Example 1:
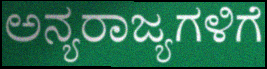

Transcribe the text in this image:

ಅನ್ಯರಾಜ್ಯಗಳಿಗೆ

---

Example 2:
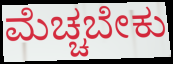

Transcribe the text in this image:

ಮೆಚ್ಚಬೇಕು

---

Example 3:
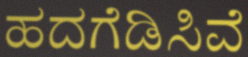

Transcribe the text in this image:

ಹದಗೆಡಿಸಿವೆ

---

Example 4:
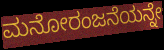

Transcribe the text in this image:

ಮನೋರಂಜನೆಯನ್ನೇ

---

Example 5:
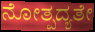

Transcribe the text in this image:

ನೋತ್ಪದ್ಯತೇ